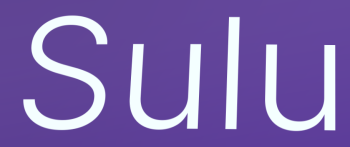
Sulu